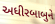
અધીરબાબુને